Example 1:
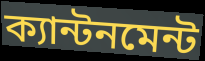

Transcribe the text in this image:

ক্যান্টনমেন্ট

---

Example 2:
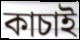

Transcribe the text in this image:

কাচাই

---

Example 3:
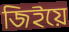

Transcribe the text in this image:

জিইয়ে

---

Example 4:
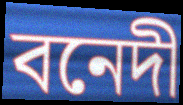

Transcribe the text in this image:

বনেদী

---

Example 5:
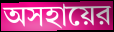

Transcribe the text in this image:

অসহায়ের